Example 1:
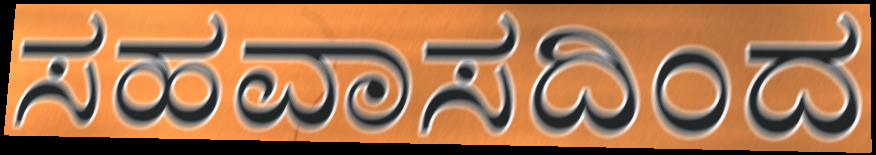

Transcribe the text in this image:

ಸಹವಾಸದಿಂದ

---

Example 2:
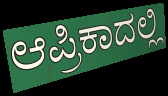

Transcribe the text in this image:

ಆಪ್ರಿಕಾದಲ್ಲಿ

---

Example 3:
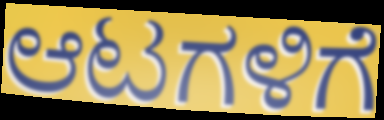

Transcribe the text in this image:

ಆಟಗಳಿಗೆ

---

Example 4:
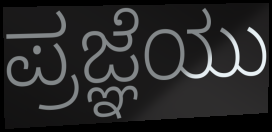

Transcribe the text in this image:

ಪ್ರಜ್ಞೆಯು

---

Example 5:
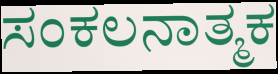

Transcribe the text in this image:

ಸಂಕಲನಾತ್ಮಕ